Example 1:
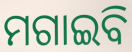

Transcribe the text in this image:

ମଗାଇବି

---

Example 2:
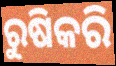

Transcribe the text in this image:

ରୁଷିକରି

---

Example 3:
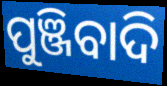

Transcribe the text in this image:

ପୁଞ୍ଜିବାଦି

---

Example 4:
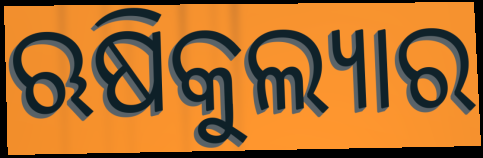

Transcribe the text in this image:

ଋଷିକୁଲ୍ୟାର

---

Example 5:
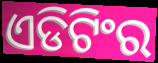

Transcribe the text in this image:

ଏଡିଟିଂର